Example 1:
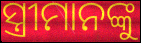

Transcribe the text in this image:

ସ୍ତ୍ରୀମାନଙ୍କୁ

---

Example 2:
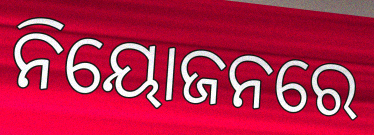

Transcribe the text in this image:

ନିୟୋଜନରେ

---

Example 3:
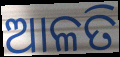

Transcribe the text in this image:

ଆଳତି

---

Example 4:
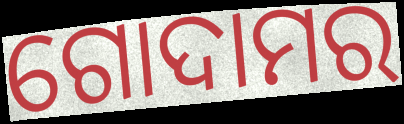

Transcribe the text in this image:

ଗୋଦାମର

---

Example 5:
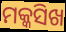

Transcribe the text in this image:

ମକ୍କସିଖ